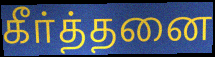
கீர்த்தனை